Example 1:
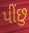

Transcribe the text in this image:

પીંછુ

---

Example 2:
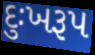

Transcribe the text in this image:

દુઃખરૂપ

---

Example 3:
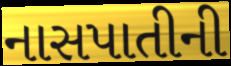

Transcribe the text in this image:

નાસપાતીની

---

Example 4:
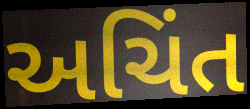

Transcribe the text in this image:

અચિંત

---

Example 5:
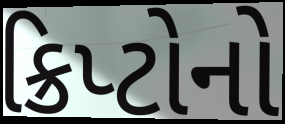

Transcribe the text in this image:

ક્રિપ્ટોનો